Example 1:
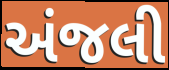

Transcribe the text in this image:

અંજલી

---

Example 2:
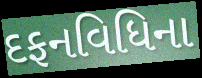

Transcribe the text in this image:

દફનવિધિના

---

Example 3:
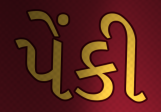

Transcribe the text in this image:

પેંકી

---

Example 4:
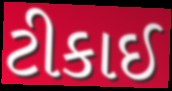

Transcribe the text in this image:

ટીકાઈ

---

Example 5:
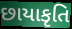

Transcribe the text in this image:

છાયાકૃતિ